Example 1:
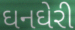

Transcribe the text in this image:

ઘનઘેરી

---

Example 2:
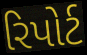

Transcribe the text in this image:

રિપોર્ટ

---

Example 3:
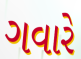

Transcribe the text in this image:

ગવારે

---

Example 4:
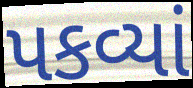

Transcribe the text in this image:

પકવ્યાં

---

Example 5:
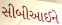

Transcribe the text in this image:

સીબીઆઈને